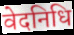
वेदनिधि